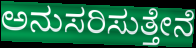
ಅನುಸರಿಸುತ್ತೇನೆ